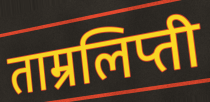
ताम्रलिप्ती